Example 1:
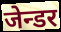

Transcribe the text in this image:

जेन्डर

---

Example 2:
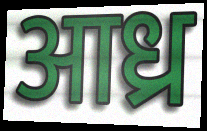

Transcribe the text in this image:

आध्र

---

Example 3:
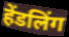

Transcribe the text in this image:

हेंडलिंग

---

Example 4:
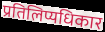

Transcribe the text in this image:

प्रतिलिप्यधिकार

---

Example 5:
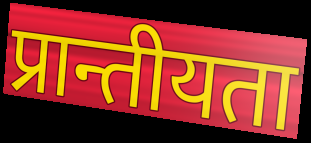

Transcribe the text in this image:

प्रान्तीयता